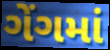
ગેંગમાં